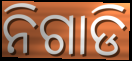
ନିଗାଡି